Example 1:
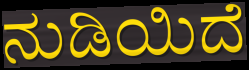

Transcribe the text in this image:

ನುಡಿಯಿದೆ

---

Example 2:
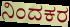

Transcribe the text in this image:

ನಿಂದಕರ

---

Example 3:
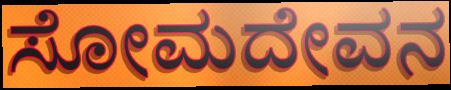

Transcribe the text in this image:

ಸೋಮದೇವನ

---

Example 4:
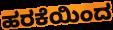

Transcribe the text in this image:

ಹರಕೆಯಿಂದ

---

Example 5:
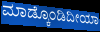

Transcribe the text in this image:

ಮಾಡ್ಕೊಂಡಿದೀಯಾ